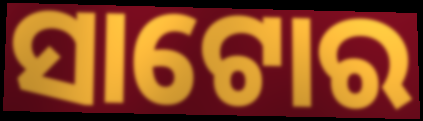
ସାଟୋର